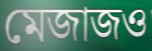
মেজাজও